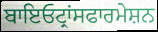
ਬਾਇਓਟ੍ਰਾਂਸਫਾਰਮੇਸ਼ਨ